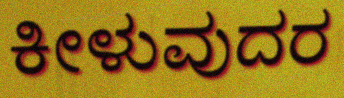
ಕೀಳುವುದರ